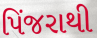
પિંજરાથી